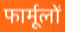
फार्मूलों